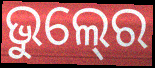
ଭୁଲ୍‍ରେ